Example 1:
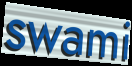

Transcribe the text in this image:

swami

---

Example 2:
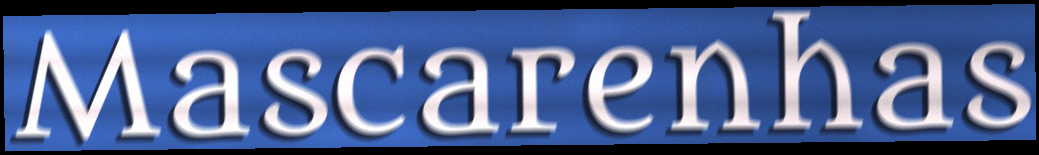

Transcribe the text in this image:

Mascarenhas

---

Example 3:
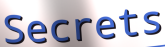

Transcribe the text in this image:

Secrets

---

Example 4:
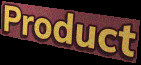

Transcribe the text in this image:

Product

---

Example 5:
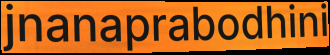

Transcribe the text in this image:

jnanaprabodhini